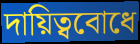
দায়িত্ববোধে